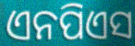
ଏନପିଏସ